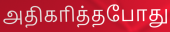
அதிகரித்தபோது